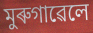
মুৰুগাৱেলে